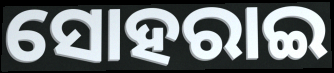
ସୋହରାଇ